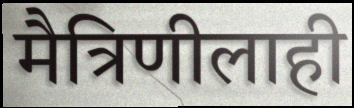
मैत्रिणीलाही